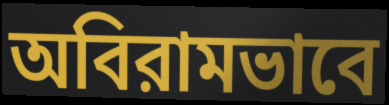
অবিরামভাবে